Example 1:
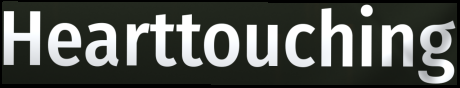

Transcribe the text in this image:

Hearttouching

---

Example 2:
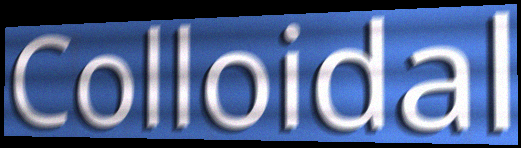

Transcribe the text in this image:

Colloidal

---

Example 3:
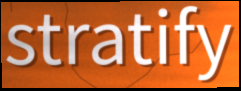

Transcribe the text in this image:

stratify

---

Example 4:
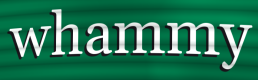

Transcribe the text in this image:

whammy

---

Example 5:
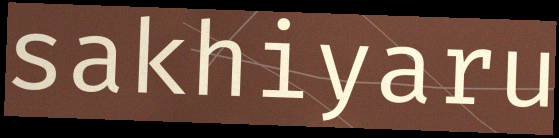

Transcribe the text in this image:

sakhiyaru